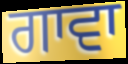
ਗਾਵਾ